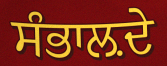
ਸੰਭਾਲ਼ਦੇ